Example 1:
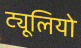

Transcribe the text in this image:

ट्यूलियो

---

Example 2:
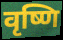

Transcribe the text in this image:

वृष्णि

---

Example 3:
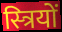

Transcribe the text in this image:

स्‍त्रियों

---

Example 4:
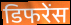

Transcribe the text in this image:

डिफरेंस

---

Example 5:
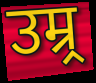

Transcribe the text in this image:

उम्र्र